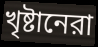
খৃষ্টানেরা